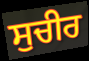
ਸੁਚੀਰ